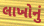
લાખોનું